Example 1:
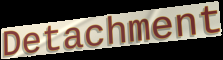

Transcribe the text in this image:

Detachment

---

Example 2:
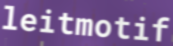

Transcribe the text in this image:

leitmotif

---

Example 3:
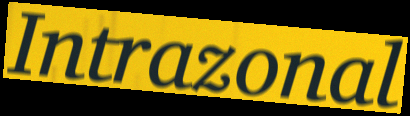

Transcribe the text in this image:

Intrazonal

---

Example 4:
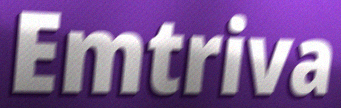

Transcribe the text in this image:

Emtriva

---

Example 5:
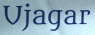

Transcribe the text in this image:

Ujagar